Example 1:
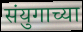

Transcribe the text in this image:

संयुगाच्या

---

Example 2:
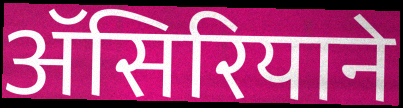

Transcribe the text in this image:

ॲसिरियाने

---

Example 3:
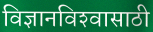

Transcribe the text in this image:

विज्ञानविश्वासाठी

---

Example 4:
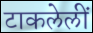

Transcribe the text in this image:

टाकलेलीं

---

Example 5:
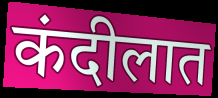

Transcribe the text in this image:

कंदीलात